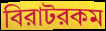
বিরাটরকম